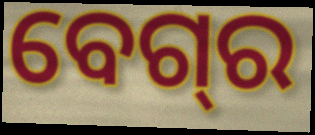
ବେଗ୍‌ର